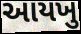
આયખુ